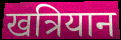
खत्रियान